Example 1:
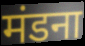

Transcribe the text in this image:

मंडना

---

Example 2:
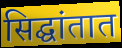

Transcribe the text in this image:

सिद्घांतात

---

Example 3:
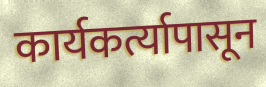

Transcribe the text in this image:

कार्यकर्त्यापासून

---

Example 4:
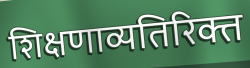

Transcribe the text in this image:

शिक्षणाव्यतिरिक्त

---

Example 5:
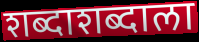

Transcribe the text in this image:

शब्दाशब्दाला